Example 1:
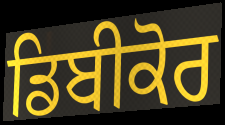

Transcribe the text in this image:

ਡਿਬੀਕੋਰ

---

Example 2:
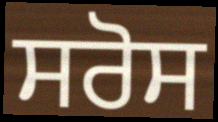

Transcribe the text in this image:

ਸਰੋਸ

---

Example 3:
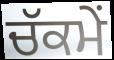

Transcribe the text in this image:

ਚੱਕਮੇਂ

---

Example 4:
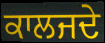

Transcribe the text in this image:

ਕਾਲਜਦੇ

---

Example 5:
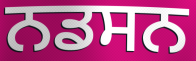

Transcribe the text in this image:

ਨਡਸਨ